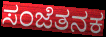
ಸಂಜೆತನಕ